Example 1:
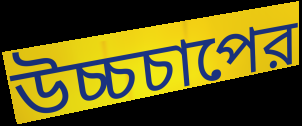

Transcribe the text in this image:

উচ্চচাপের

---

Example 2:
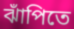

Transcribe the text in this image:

ঝাঁপিতে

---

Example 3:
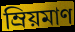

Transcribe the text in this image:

ম্রিয়মাণ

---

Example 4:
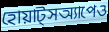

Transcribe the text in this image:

হোয়াট্‌সঅ্যাপেও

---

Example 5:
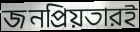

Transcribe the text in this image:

জনপ্রিয়তারই